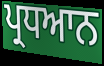
ਪ੍ਰਧਆਨ